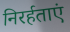
निरर्हताएं